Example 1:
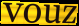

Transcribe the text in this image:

vouz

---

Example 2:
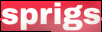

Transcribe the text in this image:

sprigs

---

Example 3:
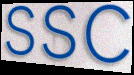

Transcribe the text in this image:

ssc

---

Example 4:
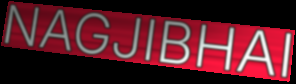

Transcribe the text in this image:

NAGJIBHAI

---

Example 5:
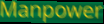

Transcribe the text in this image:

Manpower